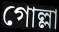
গোল্লা